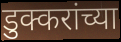
डुक्करांच्या